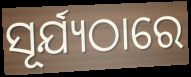
ସୂର୍ଯ୍ୟଠାରେ